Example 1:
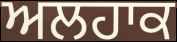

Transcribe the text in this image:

ਅਲਹਾਕ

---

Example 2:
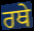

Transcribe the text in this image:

ਰਥੇ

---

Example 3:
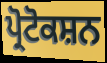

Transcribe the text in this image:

ਪ੍ਰੋਟੋਕਸ਼ਨ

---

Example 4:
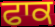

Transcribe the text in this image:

ਫਾਕ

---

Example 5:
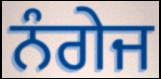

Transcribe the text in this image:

ਨੰਗੇਜ